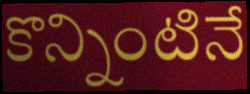
కొన్నింటినే